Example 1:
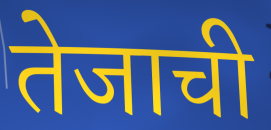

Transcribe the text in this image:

तेजाची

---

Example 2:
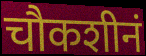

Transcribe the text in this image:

चौकशीनं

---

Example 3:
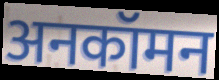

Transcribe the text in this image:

अनकॉमन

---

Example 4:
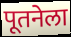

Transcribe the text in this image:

पूतनेला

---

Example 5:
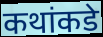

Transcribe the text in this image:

कथांकडे